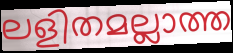
ലളിതമല്ലാത്ത